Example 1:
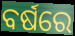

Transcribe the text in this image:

ବର୍ଷରେ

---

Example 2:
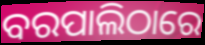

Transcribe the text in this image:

ବରପାଲିଠାରେ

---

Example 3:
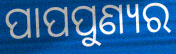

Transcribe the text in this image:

ପାପପୁଣ୍ୟର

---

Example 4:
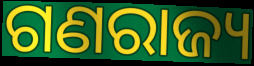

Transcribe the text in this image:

ଗଣରାଜ୍ୟ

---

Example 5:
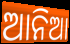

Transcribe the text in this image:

ଆନିଆ